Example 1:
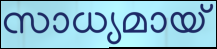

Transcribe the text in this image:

സാധ്യമായ്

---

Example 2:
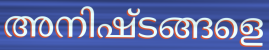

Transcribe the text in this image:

അനിഷ്ടങ്ങളെ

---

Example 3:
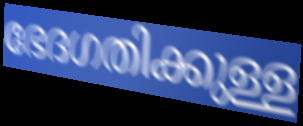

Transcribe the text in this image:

ഭേദഗതിക്കുള്ള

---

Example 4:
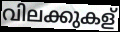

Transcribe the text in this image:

വിലക്കുകള്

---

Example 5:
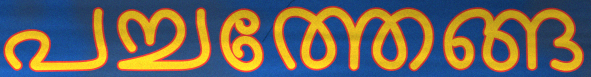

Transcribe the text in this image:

പച്ചത്തേങ്ങ